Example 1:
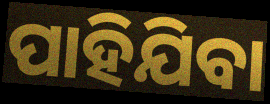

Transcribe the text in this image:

ପାହିଯିବା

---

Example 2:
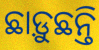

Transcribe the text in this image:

ଛାଡ଼ୁଛନ୍ତି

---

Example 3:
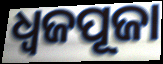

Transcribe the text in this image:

ଧ୍ୱଜପୂଜା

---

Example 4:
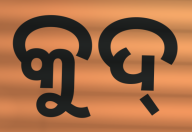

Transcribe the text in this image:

କୁଦ୍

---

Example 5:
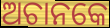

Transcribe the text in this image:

ଅଚାନକେ